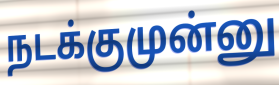
நடக்குமுன்னு